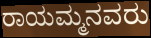
ರಾಯಮ್ಮನವರು